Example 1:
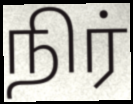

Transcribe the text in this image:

நிர்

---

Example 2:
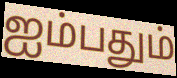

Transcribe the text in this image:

ஐம்பதும்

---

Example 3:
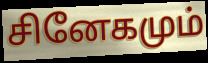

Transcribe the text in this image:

சினேகமும்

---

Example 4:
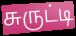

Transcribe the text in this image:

சுருட்டி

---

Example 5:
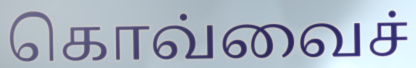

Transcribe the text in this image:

கொவ்வைச்